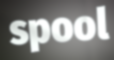
spool